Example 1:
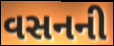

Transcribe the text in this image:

વસનની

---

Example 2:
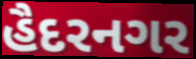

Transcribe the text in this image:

હૈદરનગર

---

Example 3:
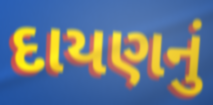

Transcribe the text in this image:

દાયણનું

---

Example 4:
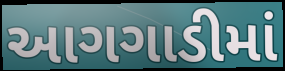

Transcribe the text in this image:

આગગાડીમાં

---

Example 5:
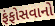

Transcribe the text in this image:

ફંફોસવાનો